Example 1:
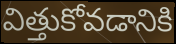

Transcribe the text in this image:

విత్తుకోవడానికి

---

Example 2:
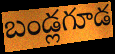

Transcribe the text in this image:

బండ్లగూడ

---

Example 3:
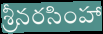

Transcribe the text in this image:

శ్రీనరసింహా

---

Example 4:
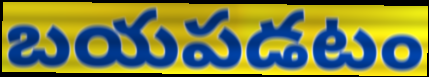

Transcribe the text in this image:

బయపడటం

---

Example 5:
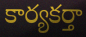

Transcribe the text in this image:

కార్యకర్తా